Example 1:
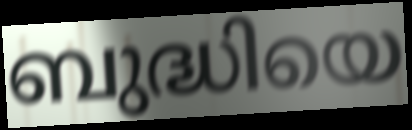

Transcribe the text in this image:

ബുദ്ധിയെ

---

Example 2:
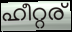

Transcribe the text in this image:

ഹീറ്റര്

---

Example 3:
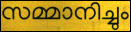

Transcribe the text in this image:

സമ്മാനിച്ചും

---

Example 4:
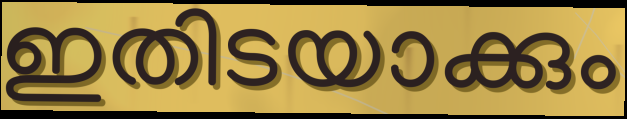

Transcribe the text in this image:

ഇതിടയാക്കും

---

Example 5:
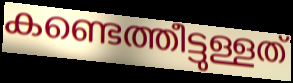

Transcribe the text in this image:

കണ്ടെത്തീട്ടുള്ളത്